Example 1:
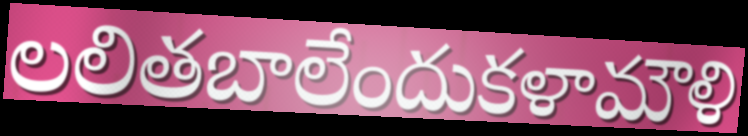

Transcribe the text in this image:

లలితబాలేందుకళామౌళి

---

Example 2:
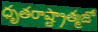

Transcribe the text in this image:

ధృతరాష్ట్రాత్మజో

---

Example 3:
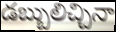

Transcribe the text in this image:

డబ్బులిచ్చినా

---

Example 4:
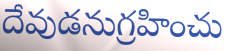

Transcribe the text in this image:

దేవుడనుగ్రహించు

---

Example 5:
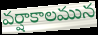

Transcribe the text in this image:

వర్షాకాలమున